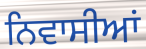
ਨਿਵਾਸੀਆਂ